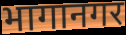
भागानगर